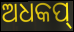
ଅଧକପ୍